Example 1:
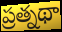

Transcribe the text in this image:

ప్రత్నథా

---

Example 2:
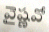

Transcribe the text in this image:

వైష్ణవో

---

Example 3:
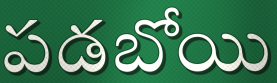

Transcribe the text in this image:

పడబోయి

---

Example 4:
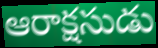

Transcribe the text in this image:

ఆరాక్షసుడు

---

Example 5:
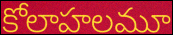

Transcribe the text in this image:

కోలాహలమూ